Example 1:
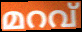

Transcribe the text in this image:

മറവ്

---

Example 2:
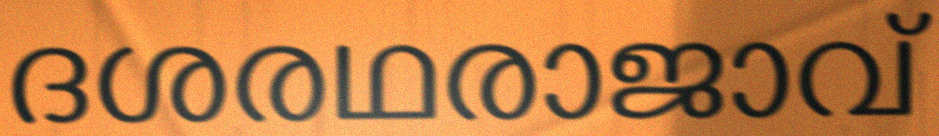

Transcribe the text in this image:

ദശരഥരാജാവ്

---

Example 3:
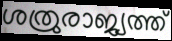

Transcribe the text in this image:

ശത്രുരാജ്യത്ത്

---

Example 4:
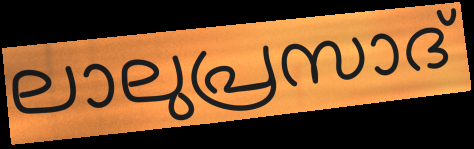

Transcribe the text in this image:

ലാലുപ്രസാദ്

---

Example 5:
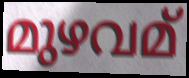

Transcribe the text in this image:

മുഴവമ്